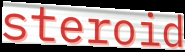
steroid